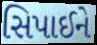
સિપાઈને